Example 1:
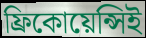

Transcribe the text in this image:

ফ্রিকোয়েন্সিই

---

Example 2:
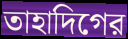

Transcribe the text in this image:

তাহাদিগের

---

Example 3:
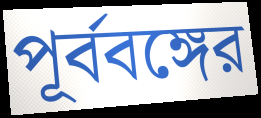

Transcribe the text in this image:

পূর্ববঙ্গের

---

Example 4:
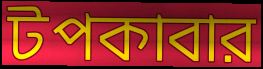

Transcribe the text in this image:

টপকাবার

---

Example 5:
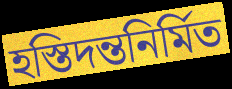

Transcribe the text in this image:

হস্তিদন্তনির্মিত